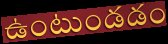
ఉంటుండడం